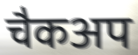
चैकअप